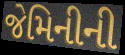
જેમિનીની